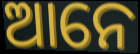
ଆନେ